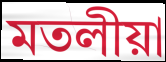
মতলীয়া